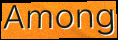
Among